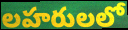
లహరులలో